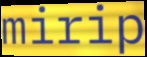
mirip